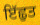
ਇੱਛੁਤ